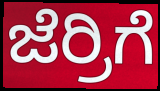
ಜೆರ್ರಿಗೆ